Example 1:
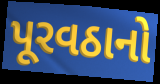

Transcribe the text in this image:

પૂરવઠાનો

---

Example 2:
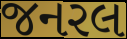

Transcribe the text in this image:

જનરલ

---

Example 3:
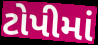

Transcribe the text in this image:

ટોપીમાં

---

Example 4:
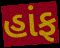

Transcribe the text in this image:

હાંફ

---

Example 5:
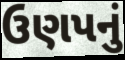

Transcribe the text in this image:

ઉણપનું